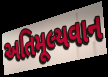
અતિમૂલ્યવાન